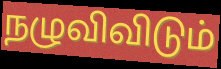
நழுவிவிடும்